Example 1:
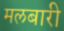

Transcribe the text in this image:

मलबारी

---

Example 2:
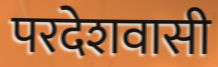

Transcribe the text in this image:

परदेशवासी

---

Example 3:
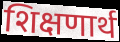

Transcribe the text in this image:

शिक्षणार्थ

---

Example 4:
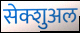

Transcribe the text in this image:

सेक्शुअल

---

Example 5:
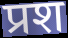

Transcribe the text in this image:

प्रश